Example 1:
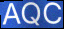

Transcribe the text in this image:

AQC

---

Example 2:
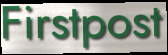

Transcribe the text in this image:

Firstpost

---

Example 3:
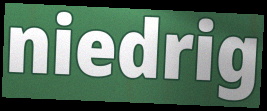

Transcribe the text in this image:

niedrig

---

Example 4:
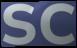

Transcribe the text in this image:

SC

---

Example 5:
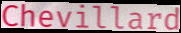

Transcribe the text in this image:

Chevillard